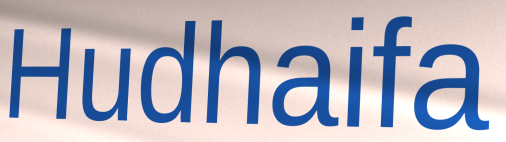
Hudhaifa